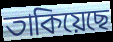
তাকিয়েছে